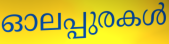
ഓലപ്പുരകൾ